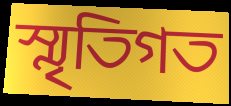
স্মৃতিগত